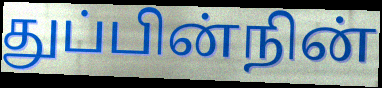
துப்பின்நின்